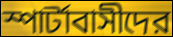
স্পার্টাবাসীদের